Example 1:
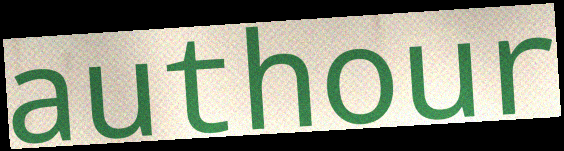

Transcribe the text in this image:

authour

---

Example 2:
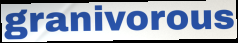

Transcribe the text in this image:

granivorous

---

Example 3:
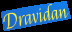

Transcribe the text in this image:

Dravidan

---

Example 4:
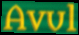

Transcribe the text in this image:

Avul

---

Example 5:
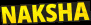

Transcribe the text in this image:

NAKSHA